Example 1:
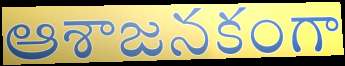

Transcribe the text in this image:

ఆశాజనకంగా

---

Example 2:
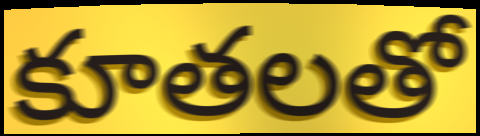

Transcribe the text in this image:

కూతలతో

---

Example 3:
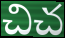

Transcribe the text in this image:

చిచ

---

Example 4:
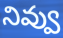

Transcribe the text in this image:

నివ్వు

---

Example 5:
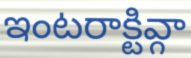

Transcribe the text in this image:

ఇంటరాక్టివ్గా